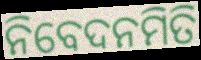
ନିବେଦନମିତି